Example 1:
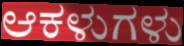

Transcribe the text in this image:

ಆಕಳುಗಳು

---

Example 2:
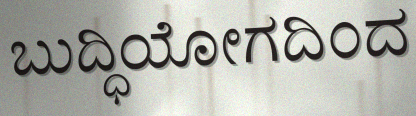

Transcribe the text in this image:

ಬುದ್ಧಿಯೋಗದಿಂದ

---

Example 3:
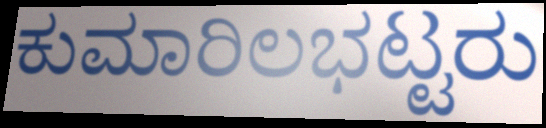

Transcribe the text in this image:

ಕುಮಾರಿಲಭಟ್ಟರು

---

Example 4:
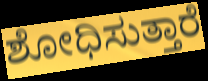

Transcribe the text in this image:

ಶೋಧಿಸುತ್ತಾರೆ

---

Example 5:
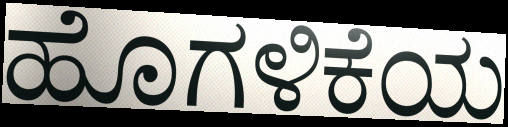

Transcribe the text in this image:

ಹೊಗಳಿಕೆಯ